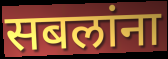
सबलांना